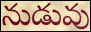
నుడువు